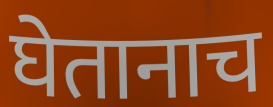
घेतानाच